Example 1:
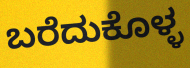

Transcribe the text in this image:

ಬರೆದುಕೊಳ್ಳ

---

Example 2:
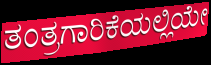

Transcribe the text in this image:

ತಂತ್ರಗಾರಿಕೆಯಲ್ಲಿಯೇ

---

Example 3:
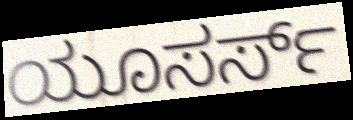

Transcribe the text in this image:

ಯೂಸರ್ಸ್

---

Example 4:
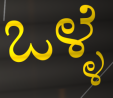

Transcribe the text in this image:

ಒಳ್ಳೆ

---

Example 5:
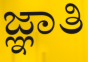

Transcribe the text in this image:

ಜ್ಞಾತಿ